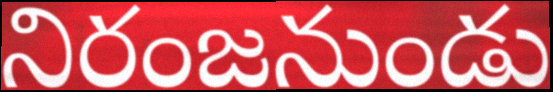
నిరంజనుండు